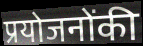
प्रयोजनोंकी